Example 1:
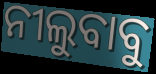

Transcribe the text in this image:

ନୀଲୁବାବୁ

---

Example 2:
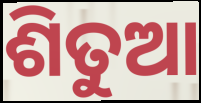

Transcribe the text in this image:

ଶିତୁଆ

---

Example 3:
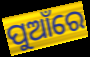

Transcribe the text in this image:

ପୁଆଁରେ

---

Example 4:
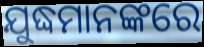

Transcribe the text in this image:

ଯୁଦ୍ଧମାନଙ୍କରେ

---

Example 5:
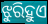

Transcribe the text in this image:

ଝୁରିହୁଏ